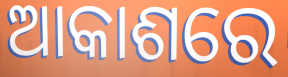
ଆକାଶରେ